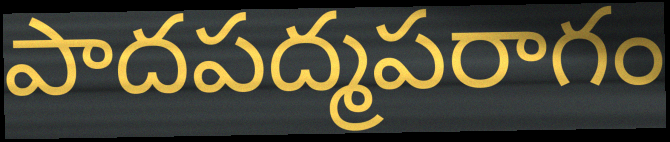
పాదపద్మపరాగం